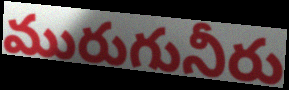
మురుగునీరు